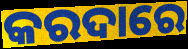
କରଦାରେ